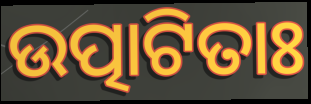
ଉତ୍ପାଟିତାଃ